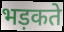
भड़कते